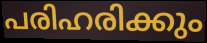
പരിഹരിക്കും